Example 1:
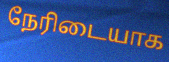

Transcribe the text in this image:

நேரிடையாக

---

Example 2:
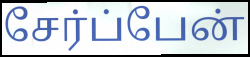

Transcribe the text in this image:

சேர்ப்பேன்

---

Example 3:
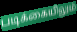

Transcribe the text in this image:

படிக்கையிலும்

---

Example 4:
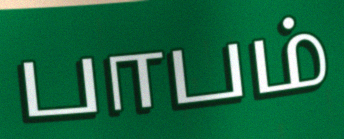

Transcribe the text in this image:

பாபம்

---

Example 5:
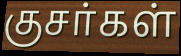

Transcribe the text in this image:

குசர்கள்